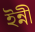
ইন্নী